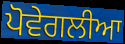
ਪੋਵੇਗਲੀਆ